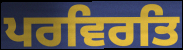
ਪਰਵਿਰਤਿ